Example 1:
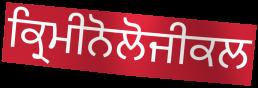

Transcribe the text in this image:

ਕ੍ਰਿਮੀਨੋਲੋਜੀਕਲ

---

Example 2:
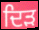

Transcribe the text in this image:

ਦਿੜ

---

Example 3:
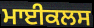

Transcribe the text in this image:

ਮਾਈਕਲਸ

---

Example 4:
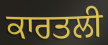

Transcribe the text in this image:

ਕਾਰਤਲੀ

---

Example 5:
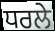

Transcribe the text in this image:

ਧਰਲੇ